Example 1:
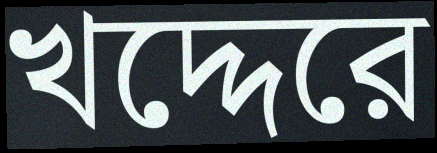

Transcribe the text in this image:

খদ্দেরে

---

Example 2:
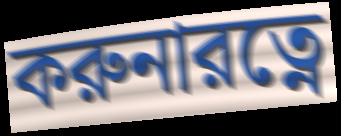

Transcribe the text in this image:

করুনারত্নে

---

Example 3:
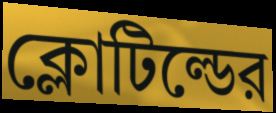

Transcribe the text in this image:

ক্লোটিল্ডের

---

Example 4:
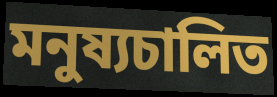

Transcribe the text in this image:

মনুষ্যচালিত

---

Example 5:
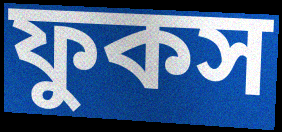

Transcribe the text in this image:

ফুকস